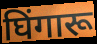
घिंगारू